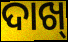
ଦାଖ୍